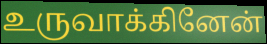
உருவாக்கினேன்